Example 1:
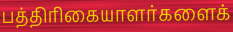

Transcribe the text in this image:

பத்திரிகையாளர்களைக்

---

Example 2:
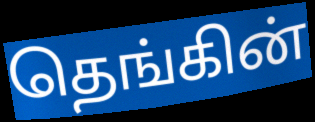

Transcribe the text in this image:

தெங்கின்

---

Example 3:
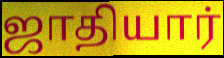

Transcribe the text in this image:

ஜாதியார்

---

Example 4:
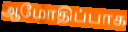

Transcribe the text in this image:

ஆமோதிப்பாக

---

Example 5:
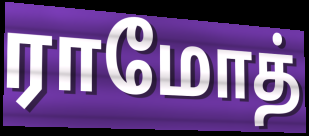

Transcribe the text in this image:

ராமோத்